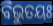
ବିଭୁତୟଃ